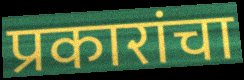
प्रकारांचा